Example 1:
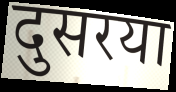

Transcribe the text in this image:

दुसरया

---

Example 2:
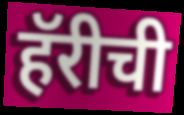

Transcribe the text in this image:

हॅरीची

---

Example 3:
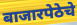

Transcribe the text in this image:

बाजारपेठेचे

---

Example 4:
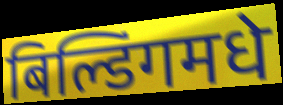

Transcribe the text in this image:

बिल्डिंगमधे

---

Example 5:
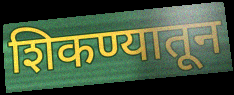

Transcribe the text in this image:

शिकण्यातून